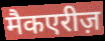
मैकएरीज़